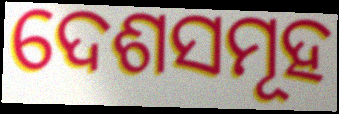
ଦେଶସମୂହ